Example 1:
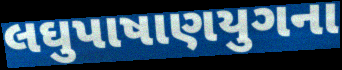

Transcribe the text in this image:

લઘુપાષાણયુગના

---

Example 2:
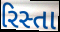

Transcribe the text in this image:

રિસ્તા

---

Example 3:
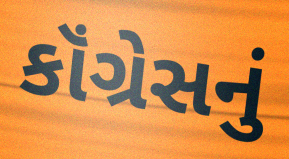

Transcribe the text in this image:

કૉંગ્રેસનું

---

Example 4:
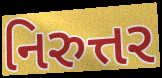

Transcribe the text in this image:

નિરુત્તર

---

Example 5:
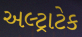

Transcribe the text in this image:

અલ્ટ્રાટેક